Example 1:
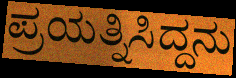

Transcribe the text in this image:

ಪ್ರಯತ್ನಿಸಿದ್ದನು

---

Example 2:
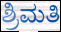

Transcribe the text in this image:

ಶ್ರಿಮತಿ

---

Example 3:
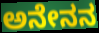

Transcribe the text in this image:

ಅನೇನನ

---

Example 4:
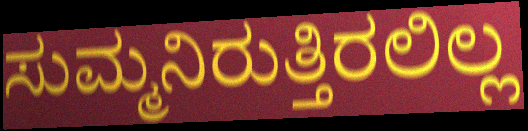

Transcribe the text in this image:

ಸುಮ್ಮನಿರುತ್ತಿರಲಿಲ್ಲ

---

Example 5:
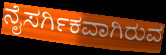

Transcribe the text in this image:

ನೈಸರ್ಗಿಕವಾಗಿರುವ